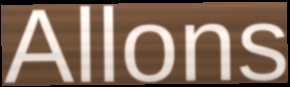
Allons